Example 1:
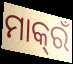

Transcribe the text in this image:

ମାକ୍‌ରଁ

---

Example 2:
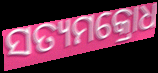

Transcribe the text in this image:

ସତ୍ୟମକ୍ରୋଧ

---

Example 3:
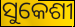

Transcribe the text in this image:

ସୁକେଶୀ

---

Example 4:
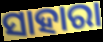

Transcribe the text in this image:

ସାହାରା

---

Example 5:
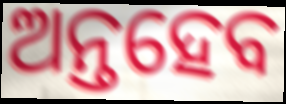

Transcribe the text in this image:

ଅନ୍ତହେବ